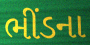
ભીંડના